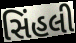
સિંહલી